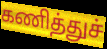
கணித்துச்